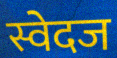
स्वेदज